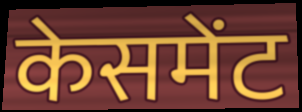
केसमेंट